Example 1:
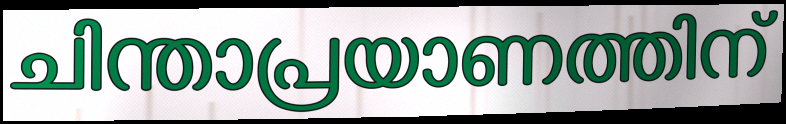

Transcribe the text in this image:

ചിന്താപ്രയാണത്തിന്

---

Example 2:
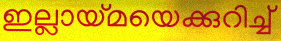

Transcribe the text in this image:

ഇല്ലായ്മയെക്കുറിച്ച്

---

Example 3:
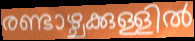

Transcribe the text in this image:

രണ്ടാഴ്ചക്കുള്ളിൽ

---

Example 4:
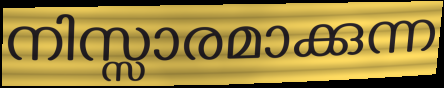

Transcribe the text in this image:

നിസ്സാരമാക്കുന്ന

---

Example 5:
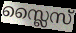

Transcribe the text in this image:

സ്ലൈസ്